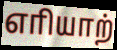
எரியாற்